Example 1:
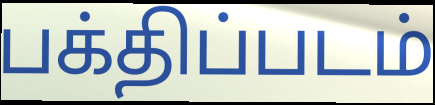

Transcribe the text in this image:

பக்திப்படம்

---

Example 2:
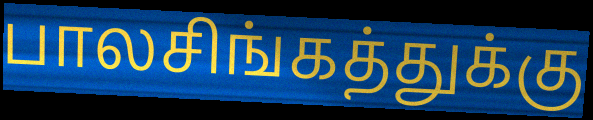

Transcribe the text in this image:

பாலசிங்கத்துக்கு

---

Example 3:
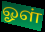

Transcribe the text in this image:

ஓள்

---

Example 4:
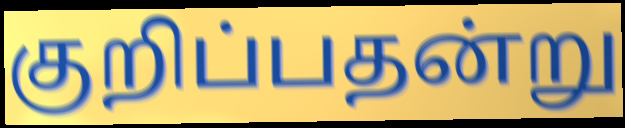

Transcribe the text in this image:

குறிப்பதன்று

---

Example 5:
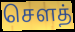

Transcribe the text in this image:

சௌத்